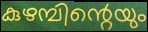
കുഴമ്പിന്റെയും